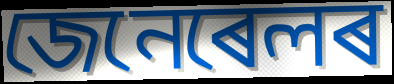
জেনেৰেলৰ